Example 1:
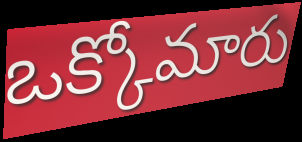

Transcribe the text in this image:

ఒక్కోమారు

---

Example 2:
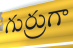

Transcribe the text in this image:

గుర్రుగా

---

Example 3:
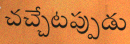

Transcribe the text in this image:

చచ్చేటప్పుడు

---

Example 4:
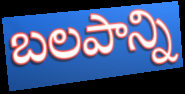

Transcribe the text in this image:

బలపాన్ని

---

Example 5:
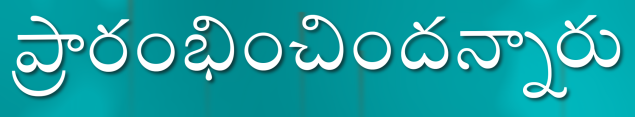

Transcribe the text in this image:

ప్రారంభించిందన్నారు